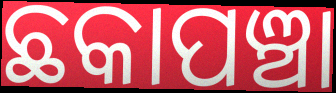
ଛକାପଞ୍ଚା